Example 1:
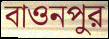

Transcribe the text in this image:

বাওনপুর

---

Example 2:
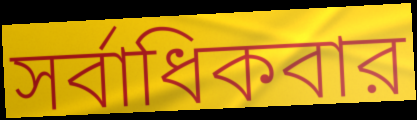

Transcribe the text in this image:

সর্বাধিকবার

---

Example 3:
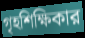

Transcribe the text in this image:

গৃহশিক্ষিকার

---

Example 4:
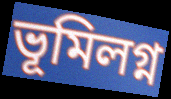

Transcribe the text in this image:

ভূমিলগ্ন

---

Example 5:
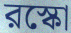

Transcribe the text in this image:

রস্কো